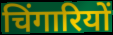
चिंगारियों